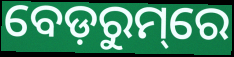
ବେଡ଼ରୁମ୍‌ରେ